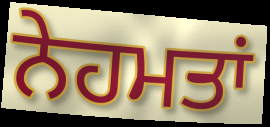
ਨੇਹਮਤਾਂ